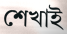
শেখাই